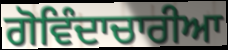
ਗੋਵਿੰਦਾਚਾਰੀਆ